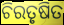
ଚିରତୃଷିତ